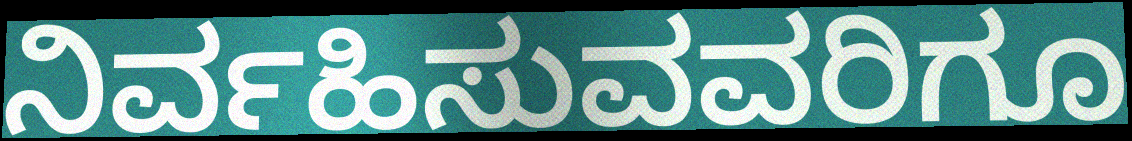
ನಿರ್ವಹಿಸುವವರಿಗೂ